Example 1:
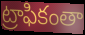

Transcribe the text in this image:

ట్రాఫికంతా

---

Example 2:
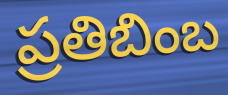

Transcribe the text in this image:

ప్రతిబింబ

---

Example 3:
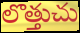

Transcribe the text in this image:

లొత్తుచు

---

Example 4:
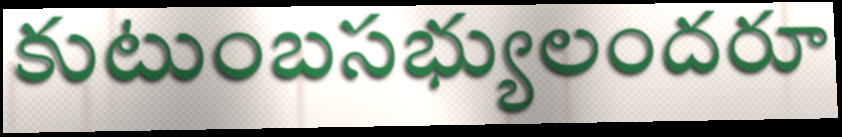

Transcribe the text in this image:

కుటుంబసభ్యులందరూ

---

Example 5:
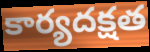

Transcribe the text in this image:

కార్యదక్షత